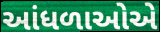
આંધળાઓએ